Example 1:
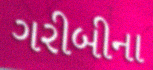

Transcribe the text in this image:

ગરીબીના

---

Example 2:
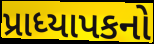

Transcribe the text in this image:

પ્રાધ્યાપકનો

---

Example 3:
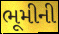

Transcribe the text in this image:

ભૂમીની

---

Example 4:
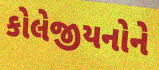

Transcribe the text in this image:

કોલેજીયનોને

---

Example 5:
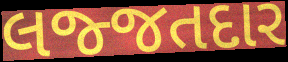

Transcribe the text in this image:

લજ્જતદાર